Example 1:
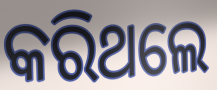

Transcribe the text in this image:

କରିଥଲେ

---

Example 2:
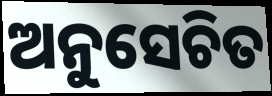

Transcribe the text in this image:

ଅନୁସେଚିତ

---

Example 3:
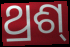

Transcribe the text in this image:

ଥ୍ରଶ୍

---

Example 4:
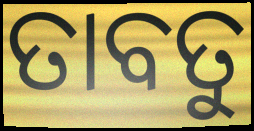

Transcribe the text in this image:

ତାବତୁ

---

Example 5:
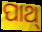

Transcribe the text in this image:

ପାଥ୍